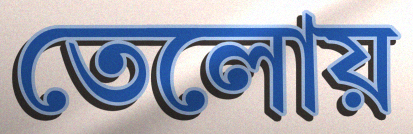
তেলোয়